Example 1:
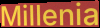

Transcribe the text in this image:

Millenia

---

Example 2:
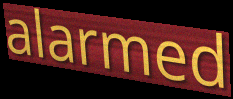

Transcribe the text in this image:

alarmed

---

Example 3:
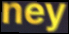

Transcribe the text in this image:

ney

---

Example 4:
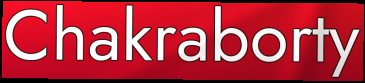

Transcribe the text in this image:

Chakraborty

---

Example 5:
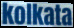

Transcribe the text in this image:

kolkata